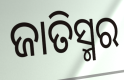
ଜାତିସ୍ମର